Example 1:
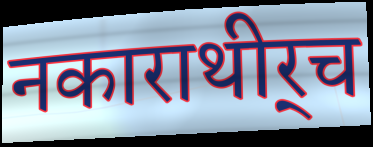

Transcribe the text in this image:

नकाराथीर्च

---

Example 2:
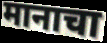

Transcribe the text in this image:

मानाचा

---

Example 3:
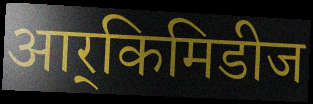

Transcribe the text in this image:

आर्किमिडीज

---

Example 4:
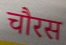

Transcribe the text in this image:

चौरस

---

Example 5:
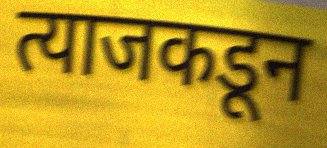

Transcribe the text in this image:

त्याजकडून